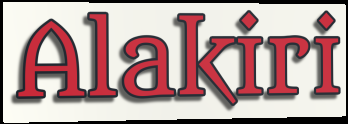
Alakiri